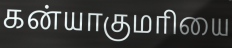
கன்யாகுமரியை